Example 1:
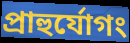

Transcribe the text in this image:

প্রাহুর্যোগং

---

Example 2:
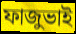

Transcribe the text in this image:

ফাজুভাই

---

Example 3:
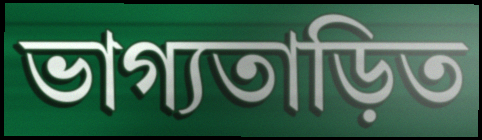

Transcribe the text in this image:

ভাগ্যতাড়িত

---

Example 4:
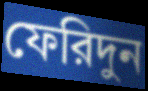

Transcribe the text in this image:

ফেরিদুন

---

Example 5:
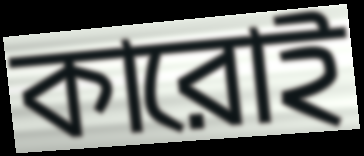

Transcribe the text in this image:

কারোই